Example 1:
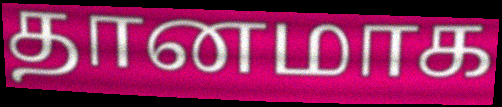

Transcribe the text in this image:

தானமாக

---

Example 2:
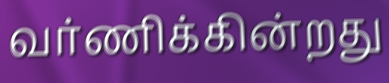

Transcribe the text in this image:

வர்ணிக்கின்றது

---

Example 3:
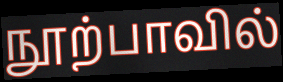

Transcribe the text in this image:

நூற்பாவில்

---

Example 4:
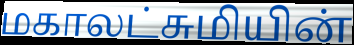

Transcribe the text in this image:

மகாலட்சுமியின்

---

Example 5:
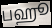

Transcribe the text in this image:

பஹூ